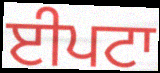
ਈਪਟਾ